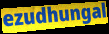
ezudhungal